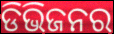
ଡିଭିଜନର